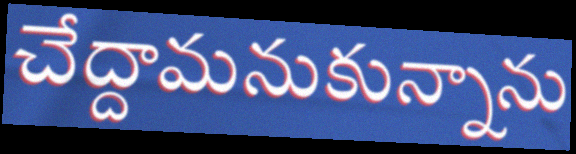
చేద్దామనుకున్నాను